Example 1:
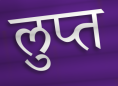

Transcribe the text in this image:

लुप्त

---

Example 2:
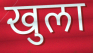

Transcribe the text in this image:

खुला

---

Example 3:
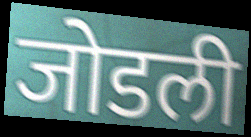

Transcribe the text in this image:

जोडली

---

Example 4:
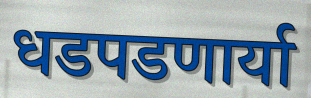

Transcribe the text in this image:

धडपडणार्या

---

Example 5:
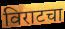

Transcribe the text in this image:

विराटचा